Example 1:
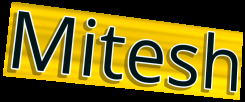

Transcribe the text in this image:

Mitesh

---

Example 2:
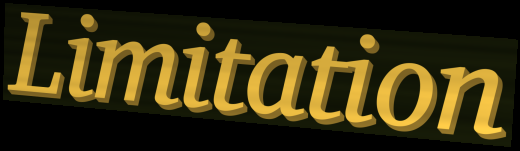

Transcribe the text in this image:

Limitation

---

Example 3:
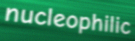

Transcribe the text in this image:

nucleophilic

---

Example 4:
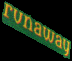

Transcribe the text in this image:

runaway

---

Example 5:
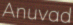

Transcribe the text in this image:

Anuvad